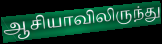
ஆசியாவிலிருந்து